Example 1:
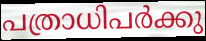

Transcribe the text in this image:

പത്രാധിപർക്കു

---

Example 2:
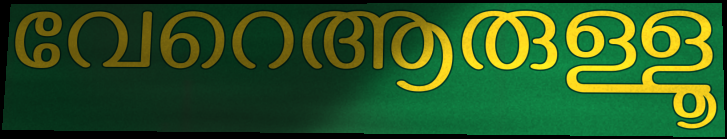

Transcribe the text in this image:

വേറെആരുള്ളൂ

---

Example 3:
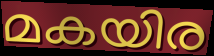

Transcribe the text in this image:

മകയിര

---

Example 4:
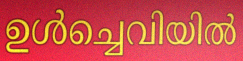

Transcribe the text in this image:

ഉൾച്ചെവിയിൽ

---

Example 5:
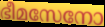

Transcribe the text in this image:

ഭീമസേനോ